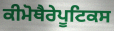
ਕੀਮੋਥੈਰੇਪੂਟਿਕਸ